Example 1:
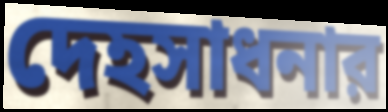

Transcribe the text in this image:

দেহসাধনার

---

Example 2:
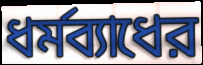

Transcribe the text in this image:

ধর্মব্যাধের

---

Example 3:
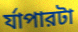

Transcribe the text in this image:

র্যাপারটা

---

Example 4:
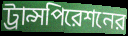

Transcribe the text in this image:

ট্রান্সপিরেশনের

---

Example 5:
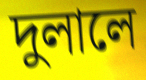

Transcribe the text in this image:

দুলালে